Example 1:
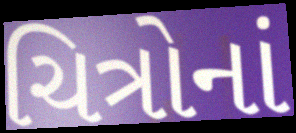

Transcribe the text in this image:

ચિત્રોનાં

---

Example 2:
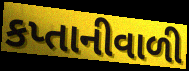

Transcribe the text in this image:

કપ્તાનીવાળી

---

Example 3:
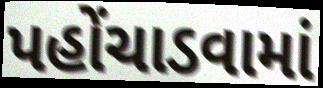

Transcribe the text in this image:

પહોંચાડવામાં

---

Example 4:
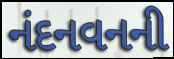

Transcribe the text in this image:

નંદનવનની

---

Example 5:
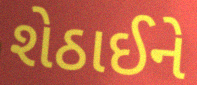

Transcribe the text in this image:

શેઠાઈને